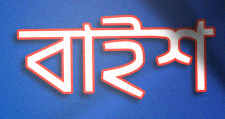
বাইশ